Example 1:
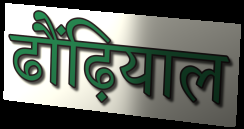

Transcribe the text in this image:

ढौंढ़ियाल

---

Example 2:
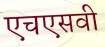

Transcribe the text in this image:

एचएसवी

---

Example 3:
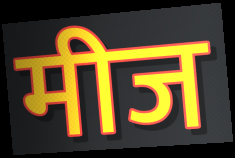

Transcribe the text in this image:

मीज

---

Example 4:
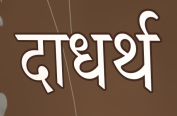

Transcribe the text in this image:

दाधर्थ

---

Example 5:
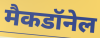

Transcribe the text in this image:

मैकडॉनेल